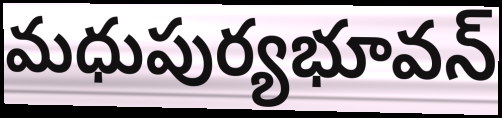
మధుపుర్యభూవన్